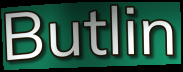
Butlin